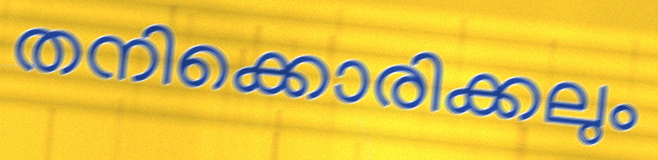
തനിക്കൊരിക്കലും